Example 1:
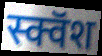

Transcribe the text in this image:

स्क्वॅश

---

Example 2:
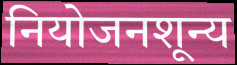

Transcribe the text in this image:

नियोजनशून्य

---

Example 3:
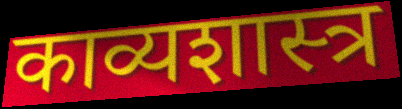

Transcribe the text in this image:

काव्यशास्त्र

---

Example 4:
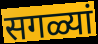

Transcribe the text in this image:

सगळ्यां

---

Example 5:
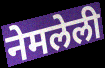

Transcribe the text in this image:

नेमलेली